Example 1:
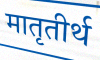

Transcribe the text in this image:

मातृतीर्थ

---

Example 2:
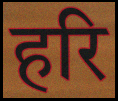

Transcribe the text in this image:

हरि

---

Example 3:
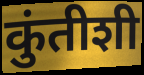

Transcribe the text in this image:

कुंतीशी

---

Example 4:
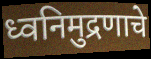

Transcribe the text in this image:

ध्वनिमुद्रणाचे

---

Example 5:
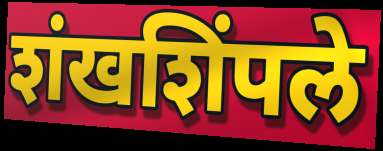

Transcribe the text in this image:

शंखशिंपले